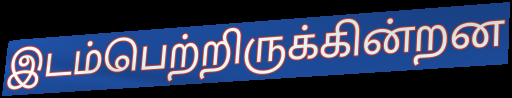
இடம்பெற்றிருக்கின்றன